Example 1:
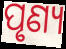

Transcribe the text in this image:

ପୃଣ୍ୟ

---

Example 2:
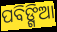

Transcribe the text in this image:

ପବିଙ୍ଗିଆ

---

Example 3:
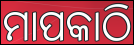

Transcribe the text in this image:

ମାପକାଠି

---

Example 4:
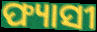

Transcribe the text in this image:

ଫ୍ୟାସୀ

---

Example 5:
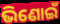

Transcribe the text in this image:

ଭିଣୋଇଁ